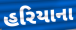
હરિયાના